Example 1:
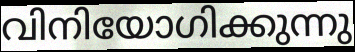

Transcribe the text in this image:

വിനിയോഗിക്കുന്നു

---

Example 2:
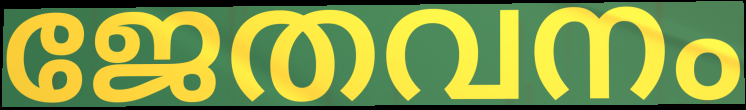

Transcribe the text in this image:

ജേതവനം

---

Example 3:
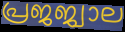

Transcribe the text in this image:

പ്രജജ്വാല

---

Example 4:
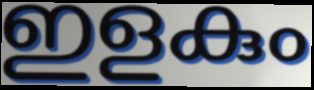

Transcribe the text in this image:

ഇളകും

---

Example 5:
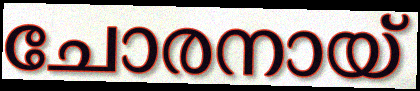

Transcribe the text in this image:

ചോരനായ്